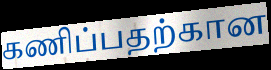
கணிப்பதற்கான